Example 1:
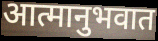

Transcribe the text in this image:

आत्मानुभवात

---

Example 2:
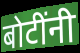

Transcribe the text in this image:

बोटींनी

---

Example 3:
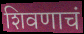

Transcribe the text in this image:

शिवणाचं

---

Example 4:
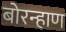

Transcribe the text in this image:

बोरन्हाण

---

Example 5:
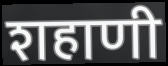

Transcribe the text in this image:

शहाणी